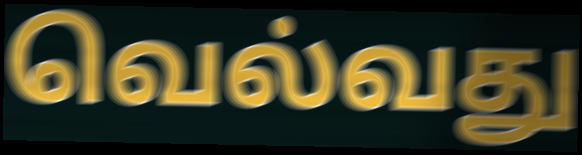
வெல்வது